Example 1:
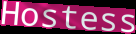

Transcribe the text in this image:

Hostess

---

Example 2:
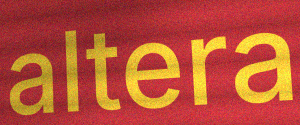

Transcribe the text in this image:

altera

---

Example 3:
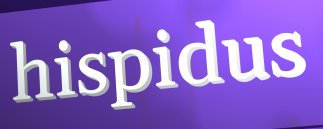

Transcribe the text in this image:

hispidus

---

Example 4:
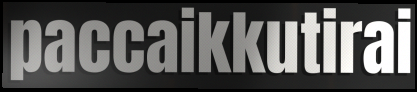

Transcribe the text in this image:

paccaikkutirai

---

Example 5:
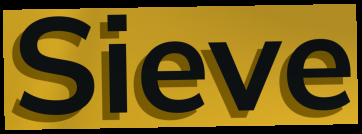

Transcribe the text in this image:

Sieve